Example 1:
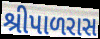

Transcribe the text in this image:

શ્રીપાળરાસ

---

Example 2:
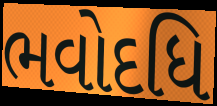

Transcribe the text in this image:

ભવોદધિ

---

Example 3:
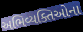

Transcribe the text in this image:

અભિવ્યક્તિઓના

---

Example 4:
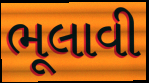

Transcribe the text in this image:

ભૂલાવી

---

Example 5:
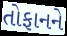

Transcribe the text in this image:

તોફાનને